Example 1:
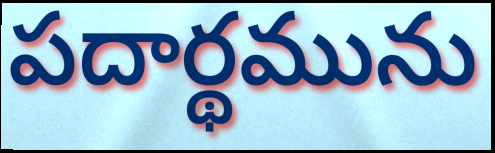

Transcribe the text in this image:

పదార్థమును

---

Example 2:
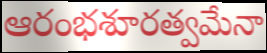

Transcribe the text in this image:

ఆరంభశూరత్వమేనా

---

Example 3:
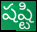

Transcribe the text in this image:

షష్టి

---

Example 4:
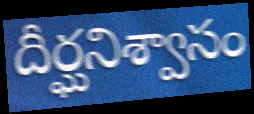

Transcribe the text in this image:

దీర్ఘనిశ్వాసం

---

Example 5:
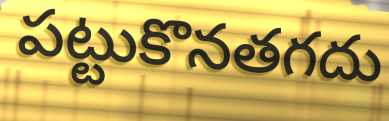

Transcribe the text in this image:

పట్టుకొనతగదు